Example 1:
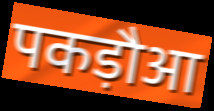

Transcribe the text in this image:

पकड़ौआ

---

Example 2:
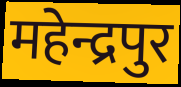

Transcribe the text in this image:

महेन्द्रपुर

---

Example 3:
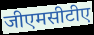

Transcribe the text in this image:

जीएमसीटीए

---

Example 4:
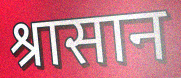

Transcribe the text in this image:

श्रासान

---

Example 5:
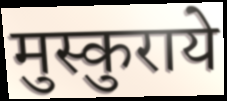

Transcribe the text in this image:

मुस्कुराये